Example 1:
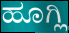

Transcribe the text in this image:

ಹೂಗ್ಲಿ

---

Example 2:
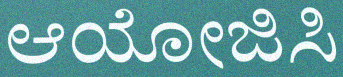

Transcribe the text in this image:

ಆಯೋಜಿಸಿ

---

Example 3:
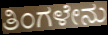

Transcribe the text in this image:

ತಿಂಗಳೇನು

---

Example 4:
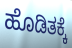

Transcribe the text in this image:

ಹೊಡಿತಕ್ಕೆ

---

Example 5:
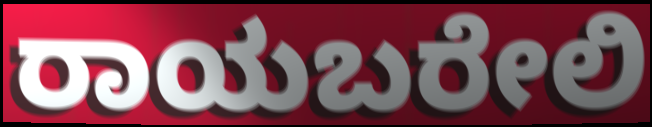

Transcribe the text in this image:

ರಾಯಬರೇಲಿ